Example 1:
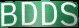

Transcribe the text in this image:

BDDS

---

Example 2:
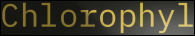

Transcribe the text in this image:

Chlorophyl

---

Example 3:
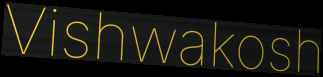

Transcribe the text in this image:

Vishwakosh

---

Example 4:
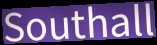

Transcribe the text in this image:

Southall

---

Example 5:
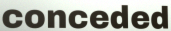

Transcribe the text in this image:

conceded